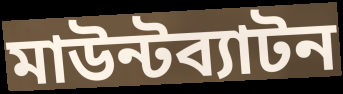
মাউন্টব্যাটন